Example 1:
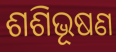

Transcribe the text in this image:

ଶଶିଭୂଷଣ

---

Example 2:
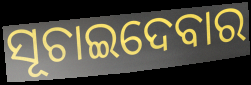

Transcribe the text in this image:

ସୂଚାଇଦେବାର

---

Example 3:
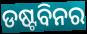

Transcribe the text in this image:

ଡଷ୍ଟବିନର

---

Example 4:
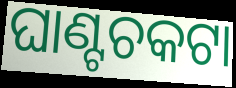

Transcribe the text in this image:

ଘାଣ୍ଟଚକଟା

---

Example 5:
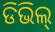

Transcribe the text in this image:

ଡିଭିଲ୍